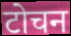
टोचन